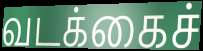
வடக்கைச்